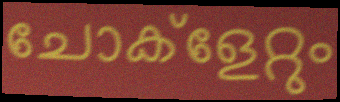
ചോക്ളേറ്റും